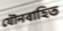
যৌনবাহিত